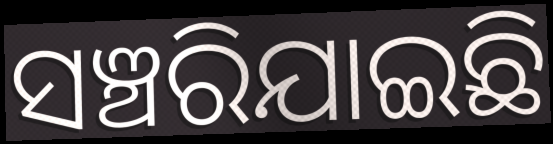
ସଞ୍ଚରିଯାଇଛି